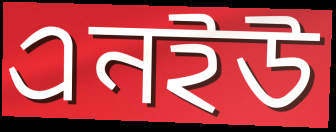
এনইউ